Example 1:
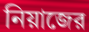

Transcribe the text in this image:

নিয়াজের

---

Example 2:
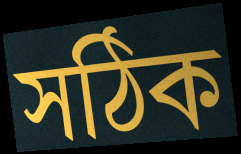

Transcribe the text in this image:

সঠিক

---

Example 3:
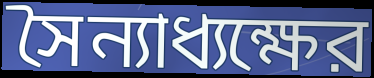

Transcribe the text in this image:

সৈন্যাধ্যক্ষের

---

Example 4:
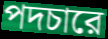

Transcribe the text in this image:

পদচারে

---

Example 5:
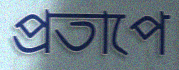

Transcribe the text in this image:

প্রতাপে